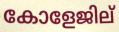
കോളേജില്